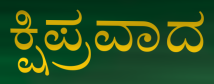
ಕ್ಷಿಪ್ರವಾದ